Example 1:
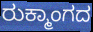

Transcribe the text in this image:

ರುಕ್ಮಾಂಗದ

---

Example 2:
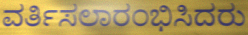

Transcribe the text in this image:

ವರ್ತಿಸಲಾರಂಭಿಸಿದರು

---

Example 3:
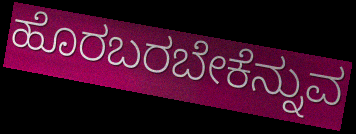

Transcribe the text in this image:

ಹೊರಬರಬೇಕೆನ್ನುವ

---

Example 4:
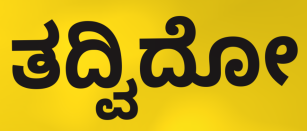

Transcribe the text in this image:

ತದ್ವಿದೋ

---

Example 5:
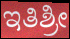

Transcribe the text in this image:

ಇತಿಶ್ರೀ